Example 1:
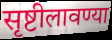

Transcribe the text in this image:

सृष्टीलावण्या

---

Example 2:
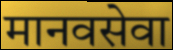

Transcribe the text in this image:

मानवसेवा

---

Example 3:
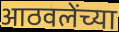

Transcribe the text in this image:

आठवलेंच्या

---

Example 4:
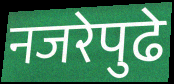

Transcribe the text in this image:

नजरेपुढे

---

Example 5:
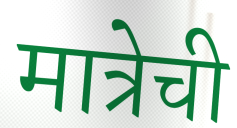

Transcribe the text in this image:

मात्रेची